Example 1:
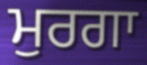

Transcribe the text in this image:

ਮੁਰਗਾ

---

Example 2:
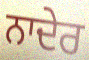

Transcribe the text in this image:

ਨਾਦੇਰ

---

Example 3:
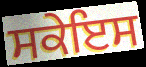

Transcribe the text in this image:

ਸਕੇਇਸ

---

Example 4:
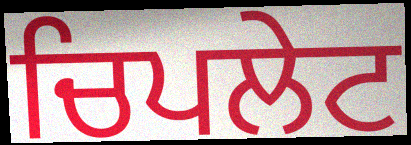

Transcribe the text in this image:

ਚਿਪਲੇਟ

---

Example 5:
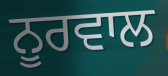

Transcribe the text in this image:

ਨੂਰਵਾਲ